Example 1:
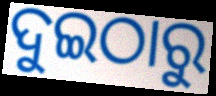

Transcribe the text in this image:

ଦୁଇଠାରୁ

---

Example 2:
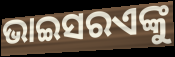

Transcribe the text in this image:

ଭାଇସରଏଙ୍କୁ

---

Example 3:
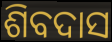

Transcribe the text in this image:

ଶିବଦାସ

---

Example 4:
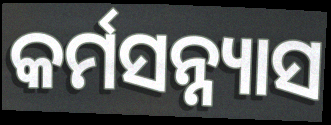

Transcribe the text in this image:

କର୍ମସନ୍ନ୍ୟାସ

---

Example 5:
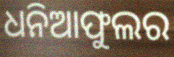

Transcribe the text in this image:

ଧନିଆଫୁଲର